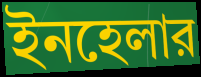
ইনহেলার